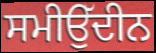
ਸਮੀਉੱਦੀਨ